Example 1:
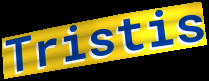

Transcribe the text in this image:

Tristis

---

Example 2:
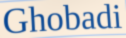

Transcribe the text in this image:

Ghobadi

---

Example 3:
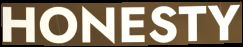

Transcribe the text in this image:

HONESTY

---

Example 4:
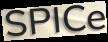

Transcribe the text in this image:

SPICe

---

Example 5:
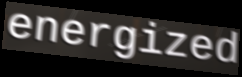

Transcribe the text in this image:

energized